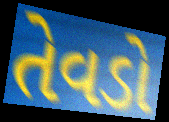
તેવડો